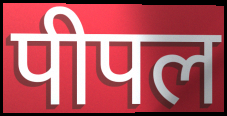
पीपल